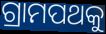
ଗ୍ରାମପଥକୁ